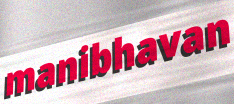
manibhavan